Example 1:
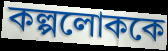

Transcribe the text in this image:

কল্পলোককে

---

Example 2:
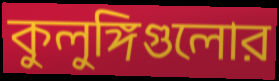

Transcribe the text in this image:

কুলুঙ্গিগুলোর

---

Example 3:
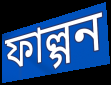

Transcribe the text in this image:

ফাল্গন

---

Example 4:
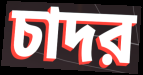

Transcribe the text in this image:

চাদর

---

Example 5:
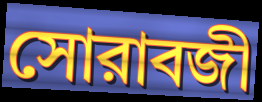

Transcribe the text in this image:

সোরাবজী